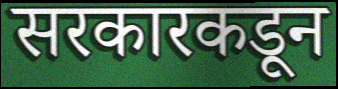
सरकारकडून